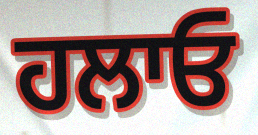
ਹਲਾਓ